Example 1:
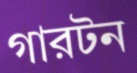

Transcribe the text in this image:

গারটন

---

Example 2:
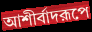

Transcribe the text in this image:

আশীর্বাদরূপে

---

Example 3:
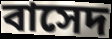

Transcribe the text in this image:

বাসেদ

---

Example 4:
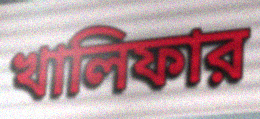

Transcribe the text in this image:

খালিফার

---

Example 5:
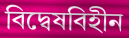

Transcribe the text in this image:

বিদ্বেষবিহীন